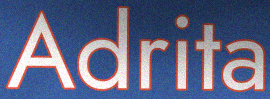
Adrita